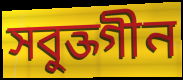
সবুক্তগীন